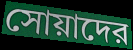
সোয়াদের